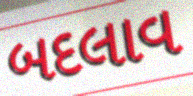
બદલાવ